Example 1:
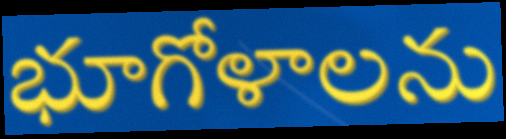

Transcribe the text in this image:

భూగోళాలను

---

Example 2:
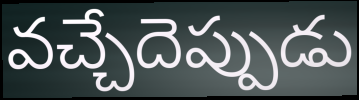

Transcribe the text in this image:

వచ్చేదెప్పుడు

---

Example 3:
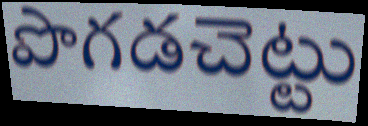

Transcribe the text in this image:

పొగడచెట్టు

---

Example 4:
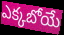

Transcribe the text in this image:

ఎక్కబోయే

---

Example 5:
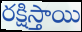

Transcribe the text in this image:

రక్షిస్తాయి